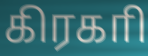
கிரகரி